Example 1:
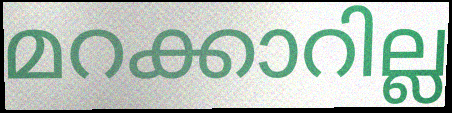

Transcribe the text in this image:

മറക്കാറില്ല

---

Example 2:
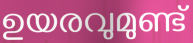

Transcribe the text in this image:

ഉയരവുമുണ്ട്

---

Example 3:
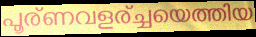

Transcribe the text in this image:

പൂര്ണവളര്ച്ചയെത്തിയ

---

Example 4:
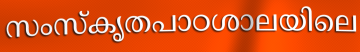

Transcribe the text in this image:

സംസ്കൃതപാഠശാലയിലെ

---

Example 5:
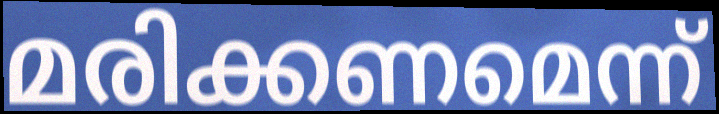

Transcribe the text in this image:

മരിക്കണമെന്ന്